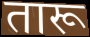
तारू